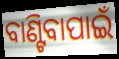
ବାଣ୍ଟିବାପାଇଁ